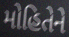
મોહિતેને